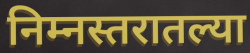
निम्नस्तरातल्या